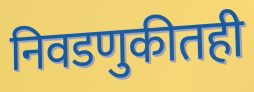
निवडणुकीतही